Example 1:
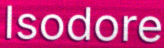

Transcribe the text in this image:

Isodore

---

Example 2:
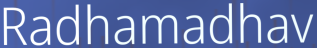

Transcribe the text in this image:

Radhamadhav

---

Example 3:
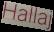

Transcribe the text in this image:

Hallaj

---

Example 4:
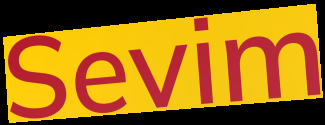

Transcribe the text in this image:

Sevim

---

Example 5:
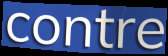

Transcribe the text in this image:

contre